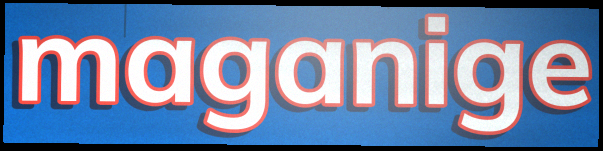
maganige